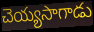
చెయ్యసాగాడు